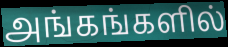
அங்கங்களில்